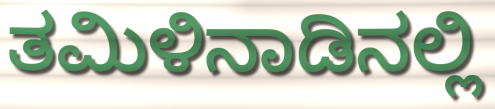
ತಮಿಳಿನಾಡಿನಲ್ಲಿ